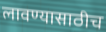
लावण्यासाठीच